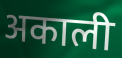
अकाली